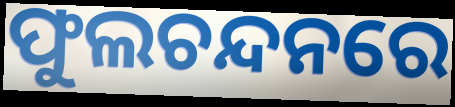
ଫୁଲଚନ୍ଦନରେ